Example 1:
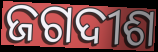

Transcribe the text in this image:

ଜଗଦୀଶ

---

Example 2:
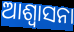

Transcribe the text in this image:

ଆଶ୍ଵାସନା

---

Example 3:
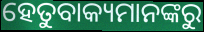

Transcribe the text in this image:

ହେତୁବାକ୍ୟମାନଙ୍କରୁ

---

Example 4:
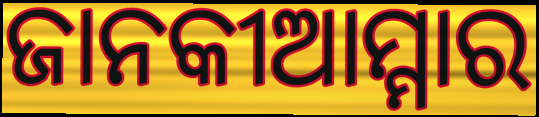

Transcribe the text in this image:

ଜାନକୀଆମ୍ମାର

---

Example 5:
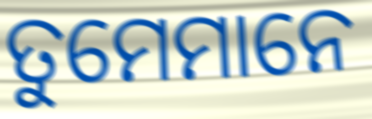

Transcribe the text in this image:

ତୁମେମାନେ